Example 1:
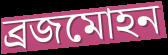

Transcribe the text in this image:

ব্রজমোহন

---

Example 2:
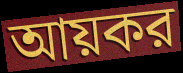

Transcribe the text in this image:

আয়কর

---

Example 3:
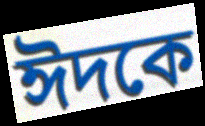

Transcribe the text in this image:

ঈদকে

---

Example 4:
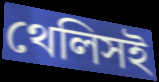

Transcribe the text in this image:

থেলিসই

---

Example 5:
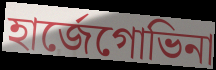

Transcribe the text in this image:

হার্জেগোভিনা